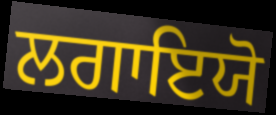
ਲਗਾਇਯੋ